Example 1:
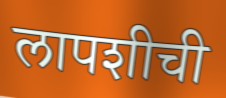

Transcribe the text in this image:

लापशीची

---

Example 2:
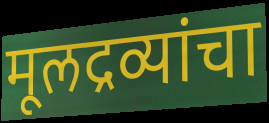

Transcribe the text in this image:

मूलद्रव्यांचा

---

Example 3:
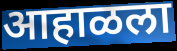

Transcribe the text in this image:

आहाळला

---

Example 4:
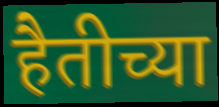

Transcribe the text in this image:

हैतीच्या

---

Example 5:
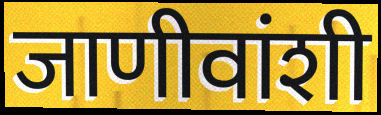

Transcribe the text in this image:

जाणीवांशी